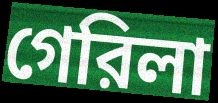
গেরিলা